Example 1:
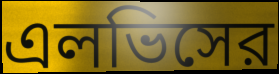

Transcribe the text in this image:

এলভিসের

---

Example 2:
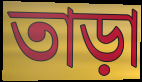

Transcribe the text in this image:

তাড়া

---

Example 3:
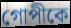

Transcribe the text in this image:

গোপীকে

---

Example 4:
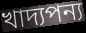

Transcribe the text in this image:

খাদ্যপন্য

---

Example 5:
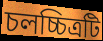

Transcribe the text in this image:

চলচ্চিত্রটি